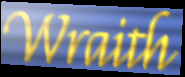
Wraith